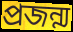
প্রজন্ম